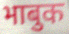
भाबुक